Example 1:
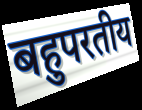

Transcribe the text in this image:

बहुपरतीय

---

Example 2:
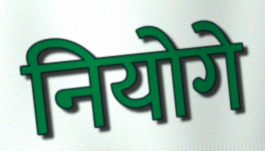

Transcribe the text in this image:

नियोगे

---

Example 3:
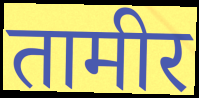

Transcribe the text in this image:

तामीर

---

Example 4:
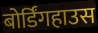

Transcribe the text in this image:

बोर्डिंगहाउस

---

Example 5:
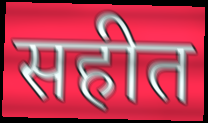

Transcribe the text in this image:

सहीत